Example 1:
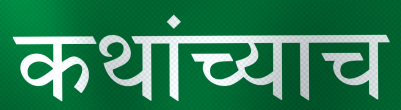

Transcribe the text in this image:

कथांच्याच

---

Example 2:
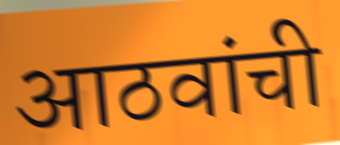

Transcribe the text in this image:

आठवांची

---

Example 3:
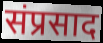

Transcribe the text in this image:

संप्रसाद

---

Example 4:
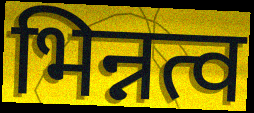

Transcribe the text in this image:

भिन्नत्व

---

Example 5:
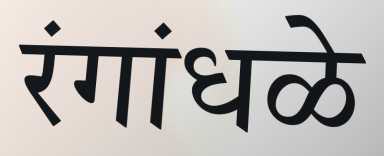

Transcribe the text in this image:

रंगांधळे